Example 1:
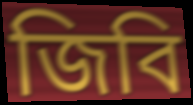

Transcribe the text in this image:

জিবি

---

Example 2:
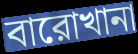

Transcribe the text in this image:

বারোখানা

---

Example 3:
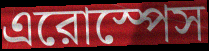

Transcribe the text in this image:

এরোস্পেস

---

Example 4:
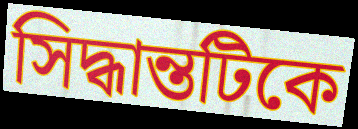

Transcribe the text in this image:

সিদ্ধান্তটিকে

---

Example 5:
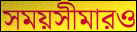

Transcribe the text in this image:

সময়সীমারও